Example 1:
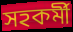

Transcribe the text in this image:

সহকর্মী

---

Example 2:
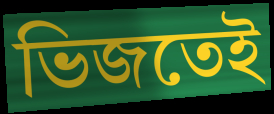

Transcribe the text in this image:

ভিজতেই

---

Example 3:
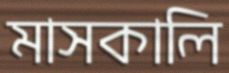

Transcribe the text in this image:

মাসকালি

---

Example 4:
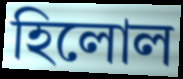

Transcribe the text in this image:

হিলোল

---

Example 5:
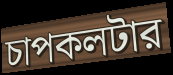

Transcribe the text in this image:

চাপকলটার